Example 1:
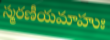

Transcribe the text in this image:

స్మరణీయమాహుః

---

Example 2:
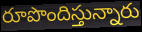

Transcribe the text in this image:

రూపొందిస్తున్నారు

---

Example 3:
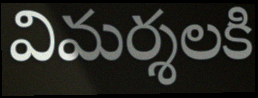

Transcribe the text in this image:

విమర్శలకి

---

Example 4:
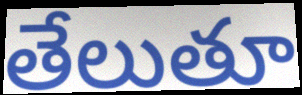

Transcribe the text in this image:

తేలుతూ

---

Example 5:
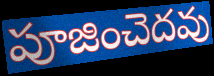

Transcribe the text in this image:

పూజించెదవు